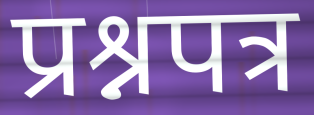
प्रश्नपत्र